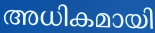
അധികമായി